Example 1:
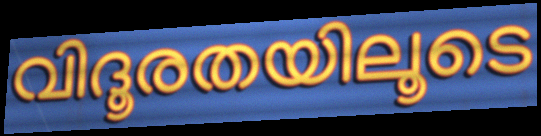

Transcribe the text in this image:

വിദൂരതയിലൂടെ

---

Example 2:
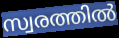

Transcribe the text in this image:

സ്വരത്തിൽ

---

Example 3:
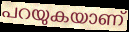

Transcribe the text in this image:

പറയുകയാണ്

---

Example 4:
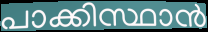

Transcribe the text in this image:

പാക്കിസ്ഥാൻ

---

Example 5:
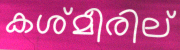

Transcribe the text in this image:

കശ്മീരില്